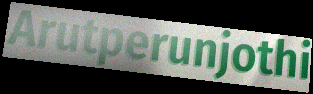
Arutperunjothi